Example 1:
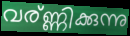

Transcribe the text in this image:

വര്ണ്ണിക്കുന്നു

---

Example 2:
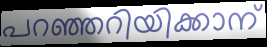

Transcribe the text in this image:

പറഞ്ഞറിയിക്കാന്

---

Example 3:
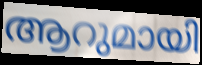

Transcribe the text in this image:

ആറുമായി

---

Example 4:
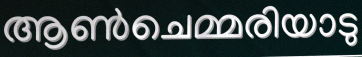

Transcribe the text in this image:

ആൺചെമ്മരിയാടു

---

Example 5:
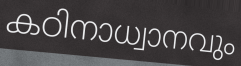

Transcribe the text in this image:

കഠിനാധ്വാനവും